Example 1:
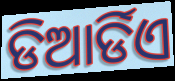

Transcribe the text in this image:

ଡିଆର୍ଡିଏ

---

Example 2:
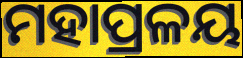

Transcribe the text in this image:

ମହାପ୍ରଳୟ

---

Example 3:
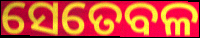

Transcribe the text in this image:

ସେତେବଳ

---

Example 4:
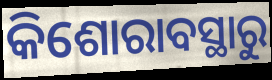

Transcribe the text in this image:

କିଶୋରାବସ୍ଥାରୁ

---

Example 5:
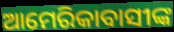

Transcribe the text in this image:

ଆମେରିକାବାସୀଙ୍କ